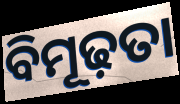
ବିମୂଢ଼ତା